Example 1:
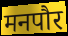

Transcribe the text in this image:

मनपौर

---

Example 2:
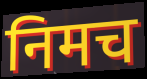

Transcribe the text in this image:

निमच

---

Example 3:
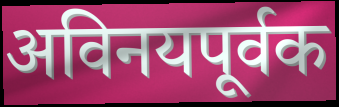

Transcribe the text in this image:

अविनयपूर्वक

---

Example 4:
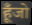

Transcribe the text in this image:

हूँजो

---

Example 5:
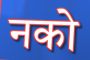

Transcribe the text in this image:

नको